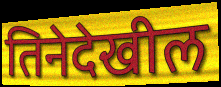
तिनेदेखील